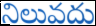
నిలువదు